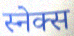
स्नेक्स